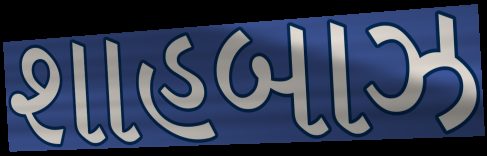
શાહબાઝ